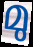
മു